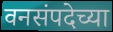
वनसंपदेच्या